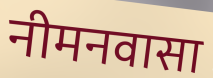
नीमनवासा